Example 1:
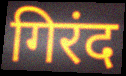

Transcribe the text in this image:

गिरंद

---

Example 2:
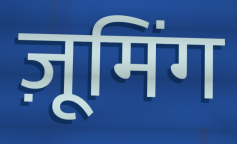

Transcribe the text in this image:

ज़ूमिंग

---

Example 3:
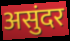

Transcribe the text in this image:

असुंदर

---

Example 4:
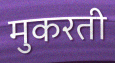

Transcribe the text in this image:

मुकरती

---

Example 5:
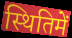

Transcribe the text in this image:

स्थितिमें